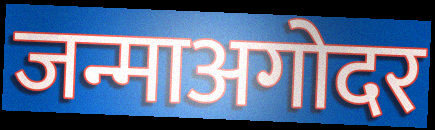
जन्माअगोदर